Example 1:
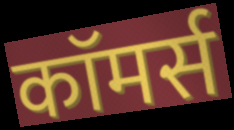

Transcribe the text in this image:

कॉमर्स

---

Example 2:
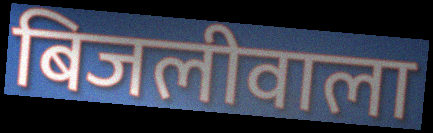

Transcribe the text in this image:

बिजलीवाला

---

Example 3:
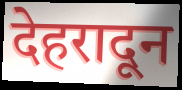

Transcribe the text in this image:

देहरादून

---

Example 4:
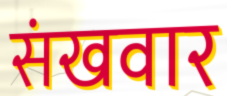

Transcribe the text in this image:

संखवार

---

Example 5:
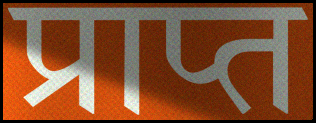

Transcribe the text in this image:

प्राप्‍त